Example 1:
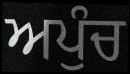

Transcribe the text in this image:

ਅਪੁੰਚ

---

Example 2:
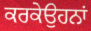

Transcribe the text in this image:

ਕਰਕੇਉਹਨਾਂ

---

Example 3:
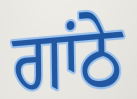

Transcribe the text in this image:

ਗਾਂਠੇ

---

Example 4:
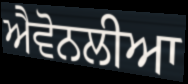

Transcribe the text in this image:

ਐਵੋਨਲੀਆ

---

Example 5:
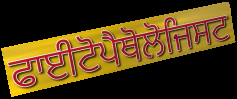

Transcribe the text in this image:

ਫਾਈਟੋਪੈਥੋਲੋਜਿਸਟ